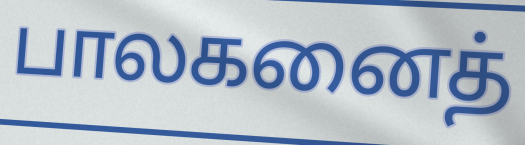
பாலகனைத்